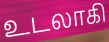
உடலாகி